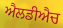
ਐਲਡੀਐਚ